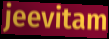
jeevitam